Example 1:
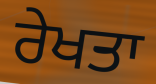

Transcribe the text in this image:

ਰੇਖਤਾ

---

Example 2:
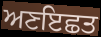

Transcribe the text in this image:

ਅਣਇਛਤ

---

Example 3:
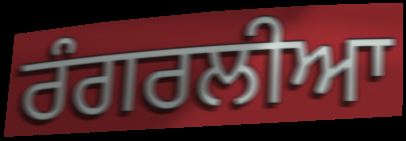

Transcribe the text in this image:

ਰੰਗਰਲੀਆ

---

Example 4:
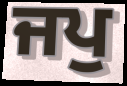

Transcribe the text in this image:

ਜਪੁ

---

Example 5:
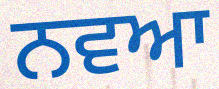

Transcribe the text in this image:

ਨਵਆ